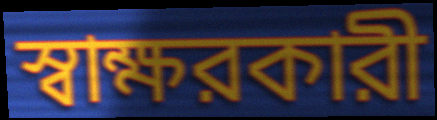
স্বাক্ষরকারী